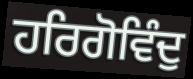
ਹਰਿਗੋਵਿੰਦੁ